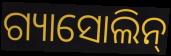
ଗ୍ୟାସୋଲିନ୍